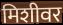
मिशीवर